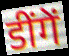
डींगें